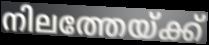
നിലത്തേയ്ക്ക്